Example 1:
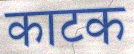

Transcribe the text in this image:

काटक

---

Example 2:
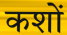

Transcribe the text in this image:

कशों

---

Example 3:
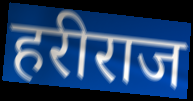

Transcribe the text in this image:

हरीराज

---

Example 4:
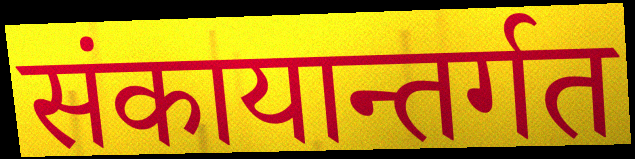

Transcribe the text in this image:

संकायान्तर्गत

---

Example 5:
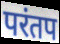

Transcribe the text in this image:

परंतप